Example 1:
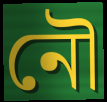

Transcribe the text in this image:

নৌ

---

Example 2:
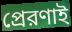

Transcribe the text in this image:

প্রেরণাই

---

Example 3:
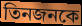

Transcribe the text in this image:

তিনজনকে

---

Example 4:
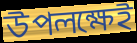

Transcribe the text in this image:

উপলক্ষেই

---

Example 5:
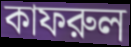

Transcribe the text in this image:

কাফরুল